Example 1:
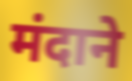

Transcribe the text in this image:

मंदाने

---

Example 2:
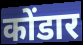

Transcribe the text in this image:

कोंडार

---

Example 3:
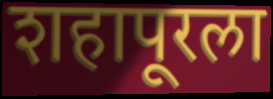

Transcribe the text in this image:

शहापूरला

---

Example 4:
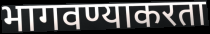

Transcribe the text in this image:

भागवण्याकरता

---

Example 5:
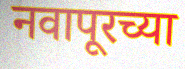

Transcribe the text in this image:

नवापूरच्या